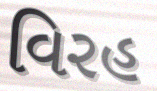
વિરહ